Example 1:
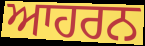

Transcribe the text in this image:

ਆਹਰਨ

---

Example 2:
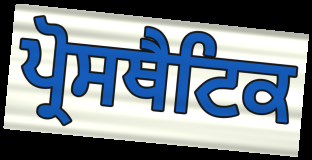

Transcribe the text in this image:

ਪ੍ਰੋਸਥੈਟਿਕ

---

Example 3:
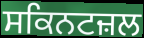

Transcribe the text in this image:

ਸਕਿਨਟਜ਼ਲ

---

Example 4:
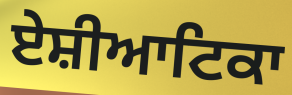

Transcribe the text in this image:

ਏਸ਼ੀਆਟਿਕਾ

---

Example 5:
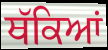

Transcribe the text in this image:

ਥੱਕਿਆਂ